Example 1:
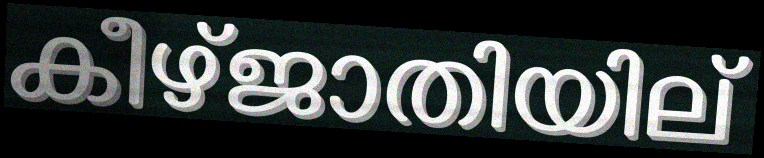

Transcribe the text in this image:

കീഴ്ജാതിയില്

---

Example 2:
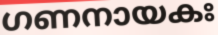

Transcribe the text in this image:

ഗണനായകഃ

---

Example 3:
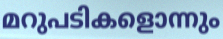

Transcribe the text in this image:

മറുപടികളൊന്നും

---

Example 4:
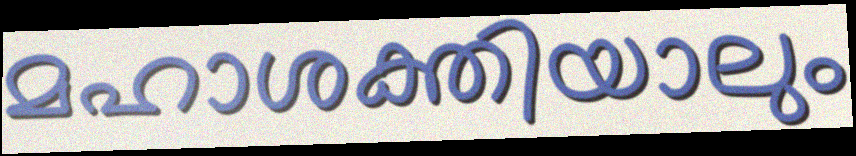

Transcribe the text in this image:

മഹാശക്തിയാലും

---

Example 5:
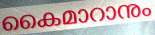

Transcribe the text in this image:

കൈമാറാനും